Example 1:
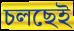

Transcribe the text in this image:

চলছেই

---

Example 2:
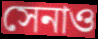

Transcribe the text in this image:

সেনাও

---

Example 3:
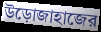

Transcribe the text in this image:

উড়োজাহাজের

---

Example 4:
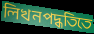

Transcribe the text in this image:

লিখনপদ্ধতিতে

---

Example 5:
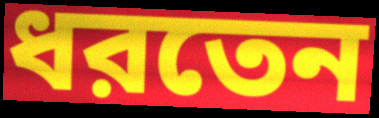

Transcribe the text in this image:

ধরতেন